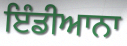
ਇੰਡੀਆਨਾ